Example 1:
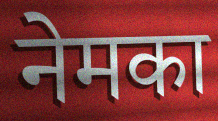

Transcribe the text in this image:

नेमका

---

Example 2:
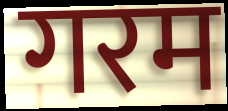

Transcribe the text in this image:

गरम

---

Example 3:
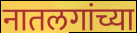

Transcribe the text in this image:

नातलगांच्या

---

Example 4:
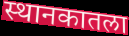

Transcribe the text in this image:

स्थानकातला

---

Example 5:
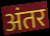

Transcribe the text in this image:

अंतर